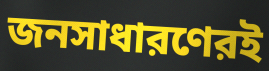
জনসাধারণেরই